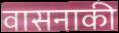
वासनाकी